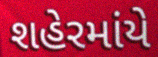
શહેરમાંયે